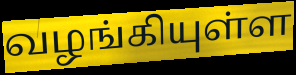
வழங்கியுள்ள